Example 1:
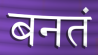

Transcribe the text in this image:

बनतं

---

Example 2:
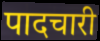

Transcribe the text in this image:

पादचारी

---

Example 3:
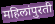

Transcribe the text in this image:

महिलांपुरती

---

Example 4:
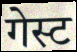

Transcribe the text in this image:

गेस्ट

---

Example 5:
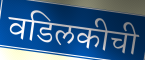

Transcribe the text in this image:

वडिलकीची